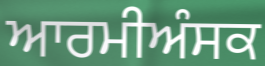
ਆਰਮੀਅੰਸਕ